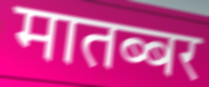
मातब्बर